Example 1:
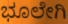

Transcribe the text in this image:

ಭೂಲೇಗಿ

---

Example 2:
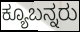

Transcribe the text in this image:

ಕ್ಯೂಬನ್ನರು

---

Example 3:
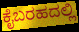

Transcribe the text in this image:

ಕೈಬರಹದಲ್ಲಿ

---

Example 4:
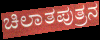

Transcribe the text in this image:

ಚಿಲಾತಪುತ್ರನ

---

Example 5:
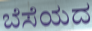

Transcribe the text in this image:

ಬೆಸೆಯದ